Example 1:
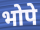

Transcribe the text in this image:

भोपे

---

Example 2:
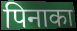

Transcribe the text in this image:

पिनाका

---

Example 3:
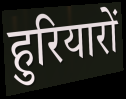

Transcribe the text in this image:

हुरियारों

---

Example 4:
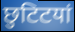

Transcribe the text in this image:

छुटिटयां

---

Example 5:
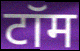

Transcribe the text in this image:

टॉम